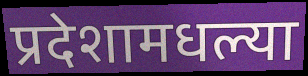
प्रदेशामधल्या